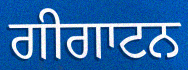
ਗੀਗਾਟਨ